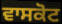
ਵਾਸਕੋਟ